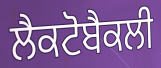
ਲੈਕਟੋਬੈਕਲੀ